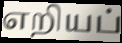
எறியப்